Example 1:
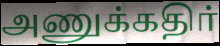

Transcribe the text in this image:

அணுக்கதிர்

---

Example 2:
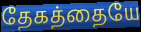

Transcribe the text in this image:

தேகத்தையே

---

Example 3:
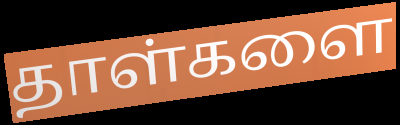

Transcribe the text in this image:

தாள்களை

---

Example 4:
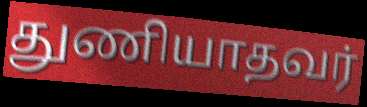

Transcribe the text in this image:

துணியாதவர்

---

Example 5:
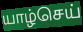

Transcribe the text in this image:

யாழ்செய்